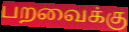
பறவைக்கு